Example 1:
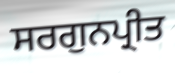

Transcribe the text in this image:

ਸਰਗੁਨਪ੍ਰੀਤ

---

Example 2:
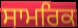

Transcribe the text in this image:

ਸਾਮਰਿਕ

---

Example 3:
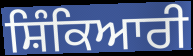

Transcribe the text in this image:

ਸ਼ਿੰਕਿਆਰੀ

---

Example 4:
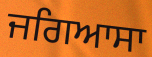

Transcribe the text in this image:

ਜਗਿਆਸਾ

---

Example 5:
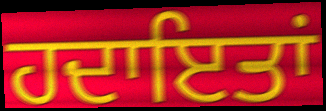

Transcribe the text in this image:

ਹਦਾਇਤਾਂ